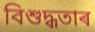
বিশুদ্ধতাৰ